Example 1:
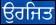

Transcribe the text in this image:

ਉਰਜਿਤ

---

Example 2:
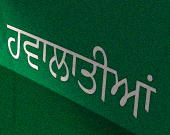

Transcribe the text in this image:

ਹਵਾਲਾਤੀਆਂ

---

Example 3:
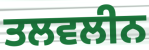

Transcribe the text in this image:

ਤਲਵਲੀਨ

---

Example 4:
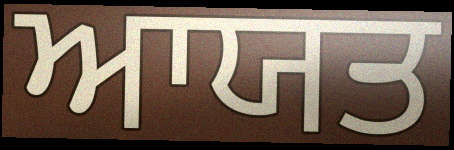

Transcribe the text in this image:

ਆਯਤ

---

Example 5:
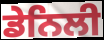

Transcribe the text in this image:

ਡੇਨਿਲੀ